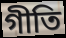
গীতি